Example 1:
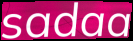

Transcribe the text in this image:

sadaa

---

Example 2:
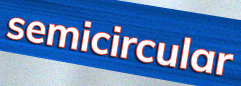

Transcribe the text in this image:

semicircular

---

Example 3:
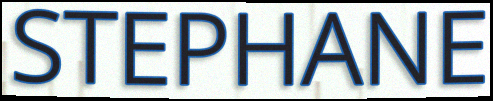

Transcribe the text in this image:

STEPHANE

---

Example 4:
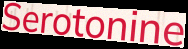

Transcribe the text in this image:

Serotonine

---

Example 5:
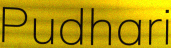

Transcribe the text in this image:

Pudhari